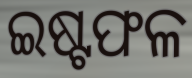
ଇଷ୍ଟଫଳ